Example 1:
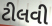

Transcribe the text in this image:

ટીલવી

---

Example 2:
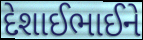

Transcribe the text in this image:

દેશાઈભાઈને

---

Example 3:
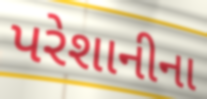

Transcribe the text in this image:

પરેશાનીના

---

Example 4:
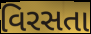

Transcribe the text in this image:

વિરસતા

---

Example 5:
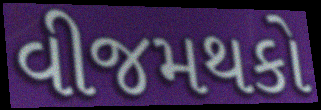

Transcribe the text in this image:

વીજમથકો